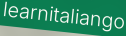
learnitaliango